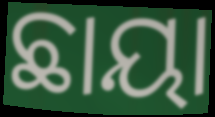
ଛାୟା